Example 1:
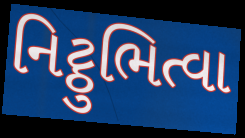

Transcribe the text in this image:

નિટ્ઠુભિત્વા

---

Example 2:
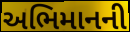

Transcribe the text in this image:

અભિમાનની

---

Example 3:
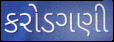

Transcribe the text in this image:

કરોડગણી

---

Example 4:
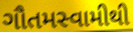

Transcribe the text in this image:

ગૌતમસ્વામીથી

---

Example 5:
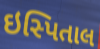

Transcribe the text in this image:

ઇસ્પિતાલ